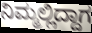
ನಿಮ್ಮಲ್ಲಿದ್ದಾಗ